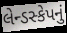
લેન્ડસ્કેપનું